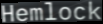
Hemlock